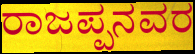
ರಾಜಪ್ಪನವರ